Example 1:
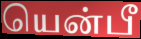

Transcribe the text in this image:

யென்பீ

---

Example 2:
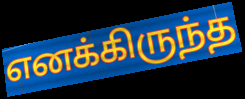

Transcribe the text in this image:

எனக்கிருந்த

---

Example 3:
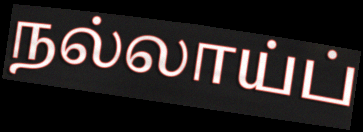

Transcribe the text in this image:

நல்லாய்ப்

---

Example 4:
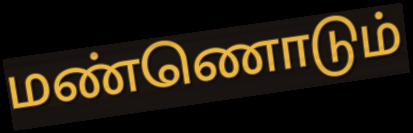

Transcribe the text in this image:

மண்ணொடும்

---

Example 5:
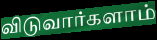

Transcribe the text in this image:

விடுவார்களாம்